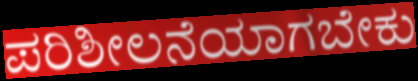
ಪರಿಶೀಲನೆಯಾಗಬೇಕು